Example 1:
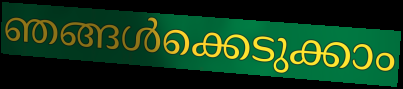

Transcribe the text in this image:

ഞങ്ങൾക്കെടുക്കാം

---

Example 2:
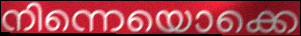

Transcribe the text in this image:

നിന്നെയൊക്കെ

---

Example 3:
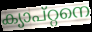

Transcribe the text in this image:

ക്യാപ്റ്റനെ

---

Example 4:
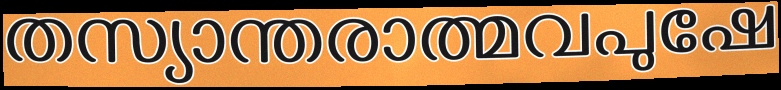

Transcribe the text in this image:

തസ്യാന്തരാത്മവപുഷേ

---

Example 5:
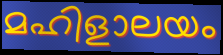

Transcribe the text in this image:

മഹിളാലയം